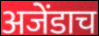
अजेंडाच